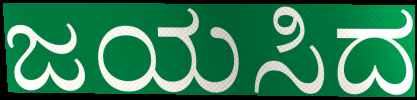
ಜಯಸಿದ